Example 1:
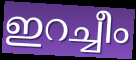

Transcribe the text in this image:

ഇറച്ചീം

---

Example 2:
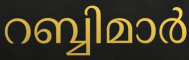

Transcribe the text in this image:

റബ്ബിമാർ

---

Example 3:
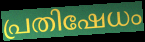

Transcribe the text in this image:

പ്രതിഷേധം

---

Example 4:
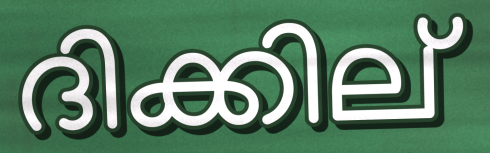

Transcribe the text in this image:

ദിക്കില്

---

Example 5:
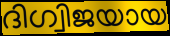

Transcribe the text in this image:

ദിഗ്വിജയായ